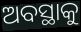
ଅବସ୍ଥାକୁ